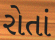
રોતાં